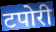
टपोरी